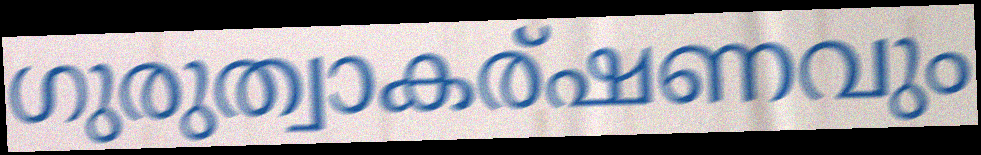
ഗുരുത്വാകര്ഷണവും